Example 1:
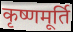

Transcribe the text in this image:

कृष्णमूर्ति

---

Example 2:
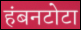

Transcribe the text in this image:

हंबनटोटा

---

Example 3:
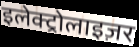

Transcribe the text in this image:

इलेक्ट्रोलाइज़र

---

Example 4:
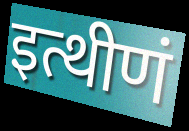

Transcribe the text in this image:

इत्थीणं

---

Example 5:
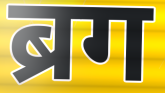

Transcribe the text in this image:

ब्रग